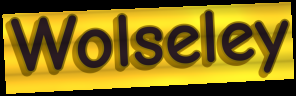
Wolseley